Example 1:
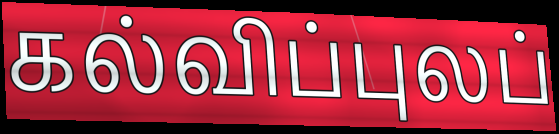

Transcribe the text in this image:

கல்விப்புலப்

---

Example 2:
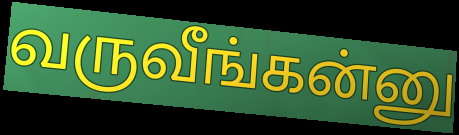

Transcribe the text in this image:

வருவீங்கன்னு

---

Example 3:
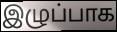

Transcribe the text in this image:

இழுப்பாக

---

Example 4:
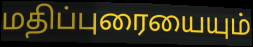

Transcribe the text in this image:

மதிப்புரையையும்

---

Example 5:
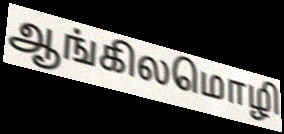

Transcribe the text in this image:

ஆங்கிலமொழி